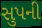
સુપની